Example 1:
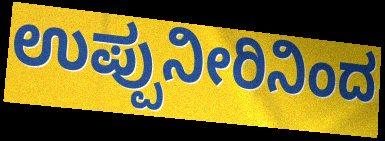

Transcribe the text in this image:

ಉಪ್ಪುನೀರಿನಿಂದ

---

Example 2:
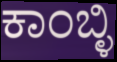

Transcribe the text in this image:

ಕಾಂಬ್ಳಿ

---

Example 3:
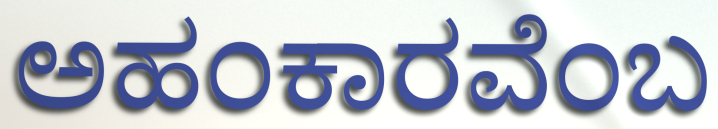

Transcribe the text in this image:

ಅಹಂಕಾರವೆಂಬ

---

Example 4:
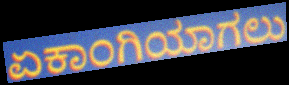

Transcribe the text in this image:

ಏಕಾಂಗಿಯಾಗಲು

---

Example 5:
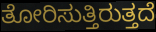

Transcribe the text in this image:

ತೋರಿಸುತ್ತಿರುತ್ತದೆ